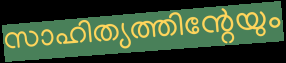
സാഹിത്യത്തിന്റേയും